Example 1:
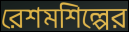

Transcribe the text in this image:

রেশমশিল্পের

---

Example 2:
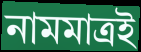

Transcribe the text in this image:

নামমাত্রই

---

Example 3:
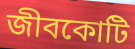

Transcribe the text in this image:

জীবকোটি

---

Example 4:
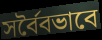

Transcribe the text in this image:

সর্বৈবভাবে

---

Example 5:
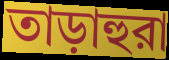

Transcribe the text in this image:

তাড়াহুরা